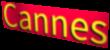
Cannes